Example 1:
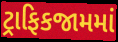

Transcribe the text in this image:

ટ્રાફિકજામમાં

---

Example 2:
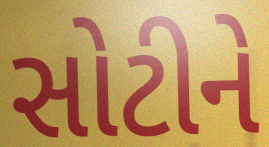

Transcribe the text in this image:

સોટીને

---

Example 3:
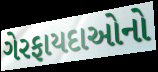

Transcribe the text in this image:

ગેરફાયદાઓનો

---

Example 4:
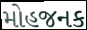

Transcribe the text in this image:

મોહજનક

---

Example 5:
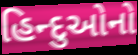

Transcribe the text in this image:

હિન્દુઓનો